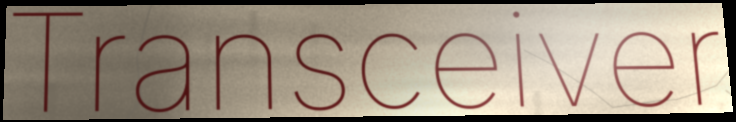
Transceiver